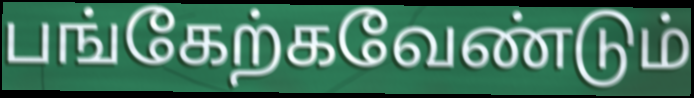
பங்கேற்கவேண்டும்